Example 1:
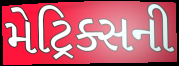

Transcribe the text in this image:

મેટ્રિક્સની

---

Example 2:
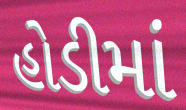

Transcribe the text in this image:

હોડીમાં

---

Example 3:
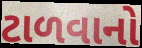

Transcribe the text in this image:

ટાળવાનો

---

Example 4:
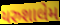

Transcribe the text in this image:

યરુશાલેમ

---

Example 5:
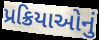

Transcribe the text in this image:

પ્રક્રિયાઓનું